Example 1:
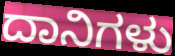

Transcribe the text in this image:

ದಾನಿಗಳು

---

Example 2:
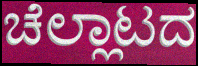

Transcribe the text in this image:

ಚೆಲ್ಲಾಟದ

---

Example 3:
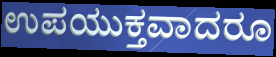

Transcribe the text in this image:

ಉಪಯುಕ್ತವಾದರೂ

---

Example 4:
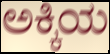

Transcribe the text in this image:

ಅಕ್ಕಿಯ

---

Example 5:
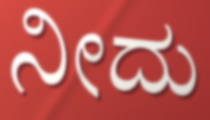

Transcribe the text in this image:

ನೀದು